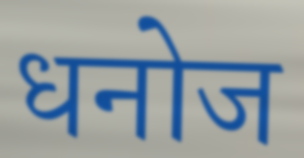
धनोज